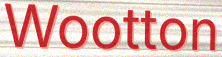
Wootton